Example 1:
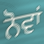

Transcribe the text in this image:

ਨੋਵਾਂ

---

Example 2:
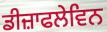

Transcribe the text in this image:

ਡੀਜ਼ਾਫਲੇਵਿਨ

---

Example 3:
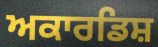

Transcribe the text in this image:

ਅਕਾਰਡਿਸ਼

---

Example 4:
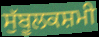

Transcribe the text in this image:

ਸੁੱਬੂਲਕਸ਼ਮੀ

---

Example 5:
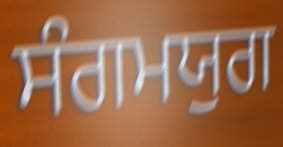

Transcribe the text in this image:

ਸੰਗਮਯੁਗ